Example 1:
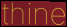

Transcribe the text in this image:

thine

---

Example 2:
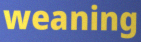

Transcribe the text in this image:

weaning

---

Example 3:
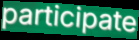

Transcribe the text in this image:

participate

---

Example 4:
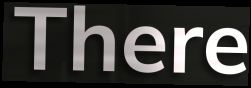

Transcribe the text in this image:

There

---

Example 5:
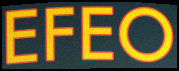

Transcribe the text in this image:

EFEO